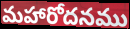
మహారోదనము